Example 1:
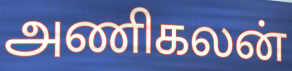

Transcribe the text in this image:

அணிகலன்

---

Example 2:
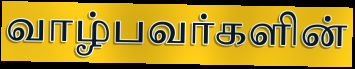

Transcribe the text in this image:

வாழ்பவர்களின்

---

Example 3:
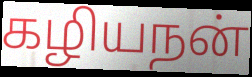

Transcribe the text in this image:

கழியநன்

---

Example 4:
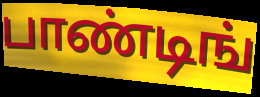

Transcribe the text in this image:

பாண்டிங்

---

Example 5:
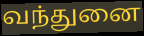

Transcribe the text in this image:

வந்துனை